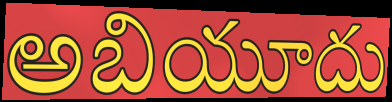
అబియూదు